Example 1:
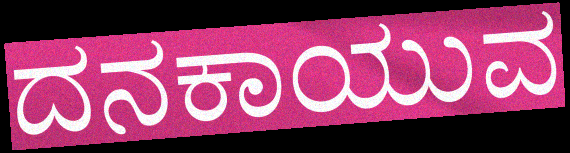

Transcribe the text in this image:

ದನಕಾಯುವ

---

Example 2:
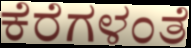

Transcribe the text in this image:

ಕೆರೆಗಳಂತೆ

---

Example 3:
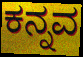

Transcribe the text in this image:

ಕನ್ನವ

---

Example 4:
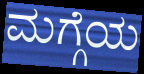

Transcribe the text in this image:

ಮಗ್ಗೆಯ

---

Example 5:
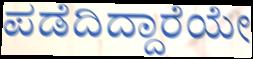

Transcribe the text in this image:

ಪಡೆದಿದ್ದಾರೆಯೇ